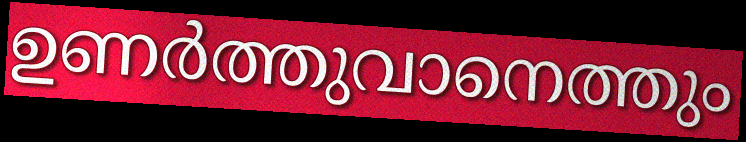
ഉണർത്തുവാനെത്തും